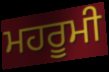
ਮਹਰੂਮੀ